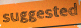
suggested